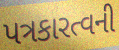
પત્રકારત્વની